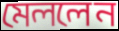
মেললেন